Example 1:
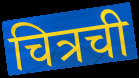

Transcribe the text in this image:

चित्रची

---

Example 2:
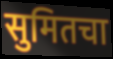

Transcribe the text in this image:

सुमितचा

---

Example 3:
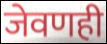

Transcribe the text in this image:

जेवणही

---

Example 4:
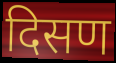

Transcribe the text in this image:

दिसण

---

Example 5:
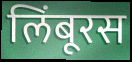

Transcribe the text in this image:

लिंबूरस